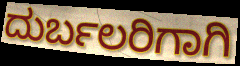
ದುರ್ಬಲರಿಗಾಗಿ